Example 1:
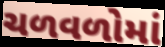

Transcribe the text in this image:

ચળવળોમાં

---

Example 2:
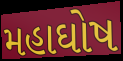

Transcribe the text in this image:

મહાઘોષ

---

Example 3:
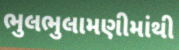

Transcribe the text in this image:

ભુલભુલામણીમાંથી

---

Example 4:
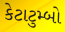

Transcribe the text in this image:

કેટાટુમ્બો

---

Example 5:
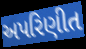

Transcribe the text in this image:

અપરિણીત